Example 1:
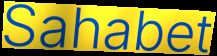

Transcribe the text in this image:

Sahabet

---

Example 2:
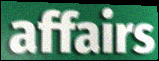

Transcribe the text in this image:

affairs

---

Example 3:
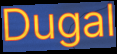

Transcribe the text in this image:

Dugal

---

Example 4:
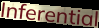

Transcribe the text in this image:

Inferential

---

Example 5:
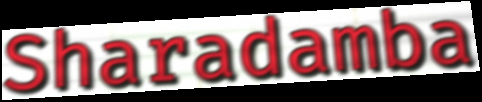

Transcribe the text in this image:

Sharadamba